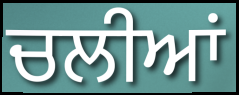
ਚਲੀਆਂ